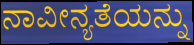
ನಾವೀನ್ಯತೆಯನ್ನು